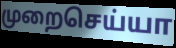
முறைசெய்யா